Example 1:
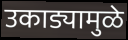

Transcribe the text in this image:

उकाड्यामुळे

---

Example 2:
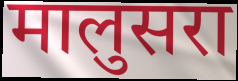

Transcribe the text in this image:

मालुसरा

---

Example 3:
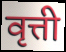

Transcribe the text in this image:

वृत्ती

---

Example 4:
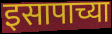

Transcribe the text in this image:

इसापाच्या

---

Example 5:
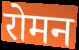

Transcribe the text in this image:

रोमन